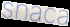
snaca